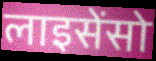
लाइसेंसो